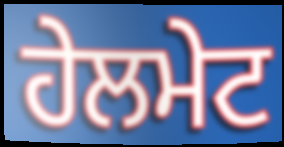
ਹੇਲਮੇਟ